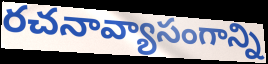
రచనావ్యాసంగాన్ని